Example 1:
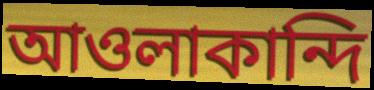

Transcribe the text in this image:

আওলাকান্দি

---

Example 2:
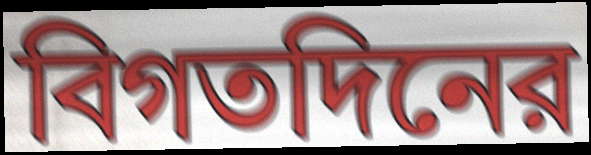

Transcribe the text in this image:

বিগতদিনের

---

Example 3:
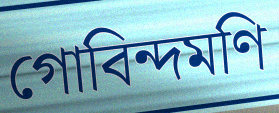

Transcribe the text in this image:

গোবিন্দমণি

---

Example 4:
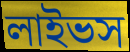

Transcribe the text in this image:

লাইভস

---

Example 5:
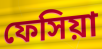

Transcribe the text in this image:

ফেসিয়া